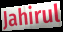
Jahirul